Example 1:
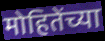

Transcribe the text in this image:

मोहितेंच्या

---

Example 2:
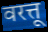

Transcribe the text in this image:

वरत्तू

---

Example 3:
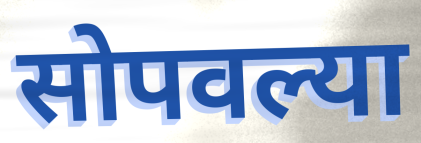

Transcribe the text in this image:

सोपवल्या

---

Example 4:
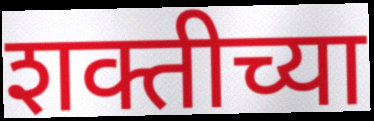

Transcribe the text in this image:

शक्तीच्या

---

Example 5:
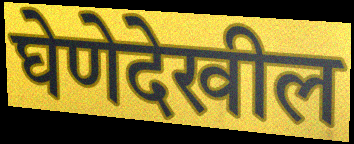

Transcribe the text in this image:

घेणेदेखील